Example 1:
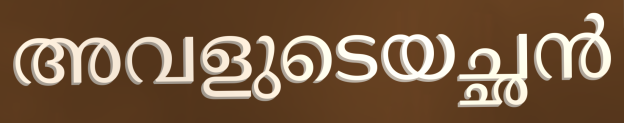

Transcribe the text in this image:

അവളുടെയച്ഛൻ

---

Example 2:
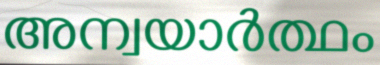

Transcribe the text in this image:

അന്വയാർത്ഥം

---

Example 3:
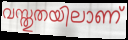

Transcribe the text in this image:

വസ്തുതയിലാണ്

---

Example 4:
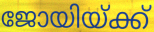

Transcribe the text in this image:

ജോയിയ്ക്ക്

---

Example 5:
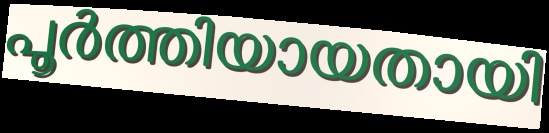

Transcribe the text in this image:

പൂർത്തിയായതായി